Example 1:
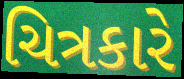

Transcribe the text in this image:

ચિત્રકારે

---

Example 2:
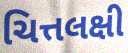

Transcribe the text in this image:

ચિત્તલક્ષી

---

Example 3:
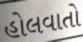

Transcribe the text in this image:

હોલવાતો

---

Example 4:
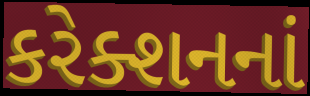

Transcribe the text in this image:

કરેક્શનનાં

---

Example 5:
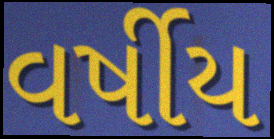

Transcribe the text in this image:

વર્ષીય